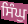
ਸਿੰਘੁ